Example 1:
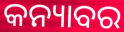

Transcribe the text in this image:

କନ୍ୟାବର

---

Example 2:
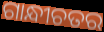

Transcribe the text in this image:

ଗାନ୍ଧୀଚତର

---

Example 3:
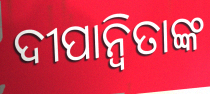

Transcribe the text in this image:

ଦୀପାନ୍ୱିତାଙ୍କ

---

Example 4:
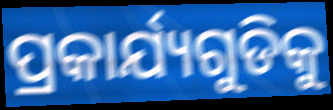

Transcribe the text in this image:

ପ୍ରକାର୍ଯ୍ୟଗୁଡିକୁ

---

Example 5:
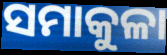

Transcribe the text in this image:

ସମାକୁଳା